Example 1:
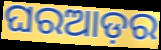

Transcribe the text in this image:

ଘରଆଡ଼ର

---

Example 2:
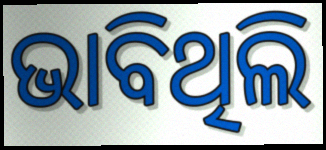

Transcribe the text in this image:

ଭାବିଥିଲି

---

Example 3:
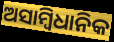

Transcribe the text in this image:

ଅସାମ୍ବିଧାନିକ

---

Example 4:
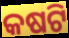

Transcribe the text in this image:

କଷଟି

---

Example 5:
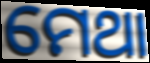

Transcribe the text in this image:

ମେଥା